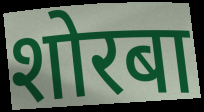
शोरबा